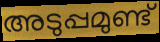
അടുപ്പമുണ്ട്